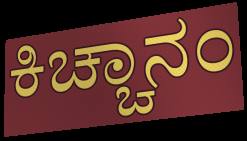
ಕಿಚ್ಚಾನಂ